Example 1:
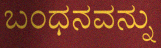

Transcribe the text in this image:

ಬಂಧನವನ್ನು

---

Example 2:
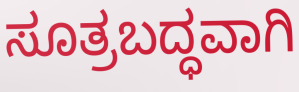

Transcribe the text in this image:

ಸೂತ್ರಬದ್ಧವಾಗಿ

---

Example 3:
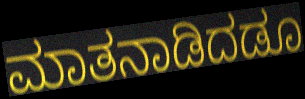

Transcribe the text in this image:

ಮಾತನಾಡಿದಡೂ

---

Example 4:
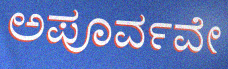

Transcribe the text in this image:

ಅಪೂರ್ವವೇ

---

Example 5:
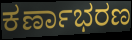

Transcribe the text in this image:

ಕರ್ಣಾಭರಣ